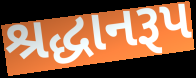
શ્રદ્ધાનરૂપ